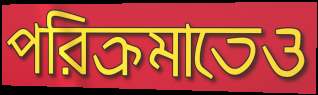
পরিক্রমাতেও